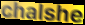
chalshe